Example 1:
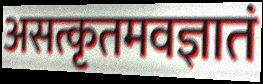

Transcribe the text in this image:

असत्कृतमवज्ञातं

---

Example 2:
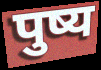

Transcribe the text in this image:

पुष्य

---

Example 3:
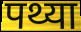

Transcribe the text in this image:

पथ्या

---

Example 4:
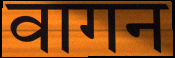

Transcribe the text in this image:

वागन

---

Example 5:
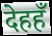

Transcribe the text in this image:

देहहँ